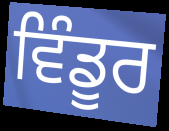
ਵਿੰਡੂਰ